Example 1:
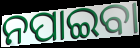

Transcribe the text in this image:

ନପାଇବା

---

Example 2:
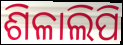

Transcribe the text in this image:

ଶିଳାଲିପି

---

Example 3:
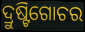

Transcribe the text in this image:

ଦ୍ରୁଷ୍ଟିଗୋଚର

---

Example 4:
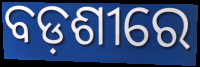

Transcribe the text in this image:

ବଡ଼ଶୀରେ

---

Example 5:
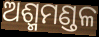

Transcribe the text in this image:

ଅଶ୍ମମଣ୍ଡଳ